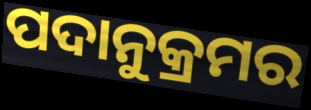
ପଦାନୁକ୍ରମର